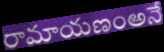
రామాయణంఅనే